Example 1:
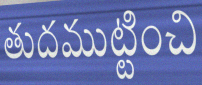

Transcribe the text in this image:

తుదముట్టించి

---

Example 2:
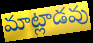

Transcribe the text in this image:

మాట్లాడవు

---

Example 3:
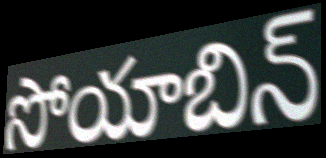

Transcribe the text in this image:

సోయాబిన్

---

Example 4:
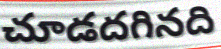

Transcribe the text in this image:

చూడదగినది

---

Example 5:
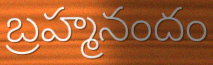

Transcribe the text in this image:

బ్రహ్మనందం